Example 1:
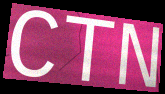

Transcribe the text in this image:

CTN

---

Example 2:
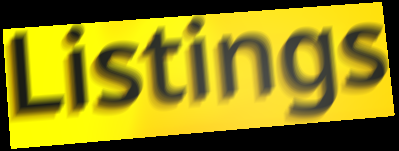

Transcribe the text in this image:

Listings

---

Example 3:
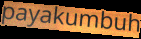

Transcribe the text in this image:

payakumbuh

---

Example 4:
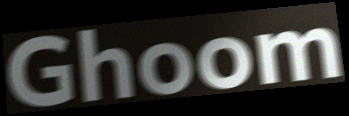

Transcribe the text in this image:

Ghoom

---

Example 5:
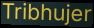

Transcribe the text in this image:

Tribhujer